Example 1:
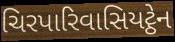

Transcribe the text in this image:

ચિરપારિવાસિયટ્ઠેન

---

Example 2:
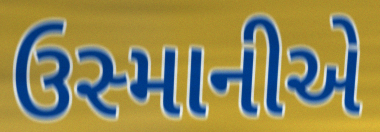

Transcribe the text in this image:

ઉસ્માનીએ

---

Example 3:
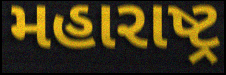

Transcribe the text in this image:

મહારાષ્ટ્ર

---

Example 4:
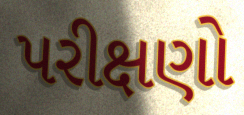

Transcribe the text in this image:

પરીક્ષણો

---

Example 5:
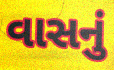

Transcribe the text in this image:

વાસનું